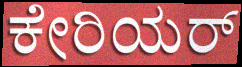
ಕೇರಿಯರ್